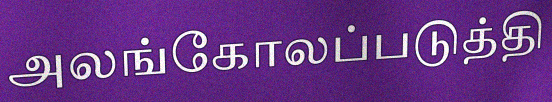
அலங்கோலப்படுத்தி